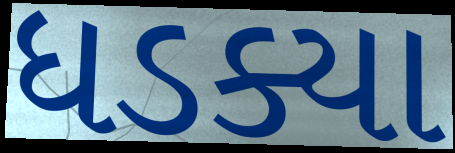
ધડક્યા